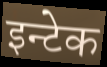
इन्टेक